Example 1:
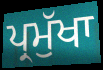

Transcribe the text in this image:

ਪ੍ਰਮੁੱਖਾ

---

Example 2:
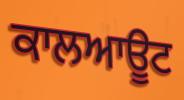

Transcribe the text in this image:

ਕਾਲਆਊਟ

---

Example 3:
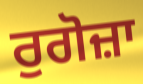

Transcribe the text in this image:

ਰੁਗੋਜ਼ਾ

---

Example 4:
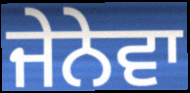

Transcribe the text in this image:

ਜੇਨੇਵਾ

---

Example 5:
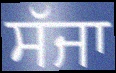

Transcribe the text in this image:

ਸੱਜਾ